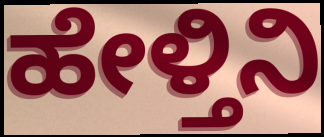
ಹೇಳ್ತಿನಿ